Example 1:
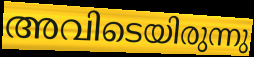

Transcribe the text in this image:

അവിടെയിരുന്നു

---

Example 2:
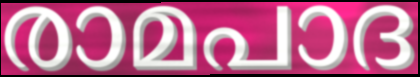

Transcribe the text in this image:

രാമപാദ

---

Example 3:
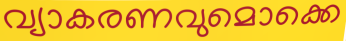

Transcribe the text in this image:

വ്യാകരണവുമൊക്കെ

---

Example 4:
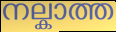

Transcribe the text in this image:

നല്കാത്ത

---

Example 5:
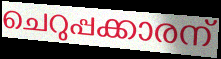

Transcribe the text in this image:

ചെറുപ്പക്കാരന്